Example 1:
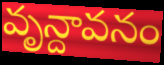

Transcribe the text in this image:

వృన్దావనం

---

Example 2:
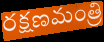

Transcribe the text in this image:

రక్షణమంత్రి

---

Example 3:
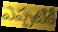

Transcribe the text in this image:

ఎప్పటికీ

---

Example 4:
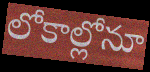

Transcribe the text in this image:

లోకాల్లోనూ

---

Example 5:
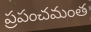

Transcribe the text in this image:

ప్రపంచమంత